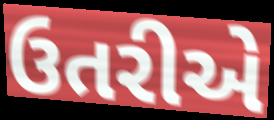
ઉતરીએ